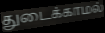
துடைக்காமல்